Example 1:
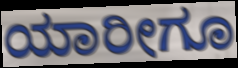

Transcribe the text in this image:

ಯಾರೀಗೂ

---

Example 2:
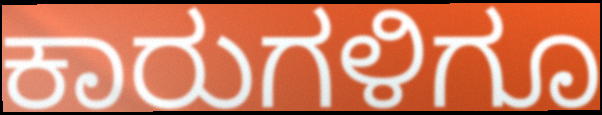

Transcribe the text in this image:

ಕಾರುಗಳಿಗೂ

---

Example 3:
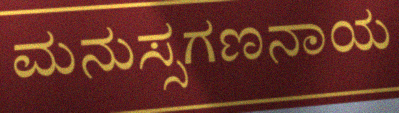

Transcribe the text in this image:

ಮನುಸ್ಸಗಣನಾಯ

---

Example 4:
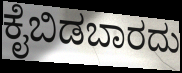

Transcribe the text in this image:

ಕೈಬಿಡಬಾರದು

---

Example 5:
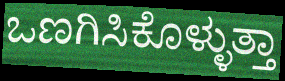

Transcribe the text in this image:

ಒಣಗಿಸಿಕೊಳ್ಳುತ್ತಾ